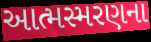
આત્મસ્મરણના